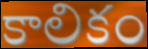
కాలికం